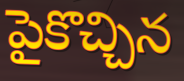
పైకొచ్చిన